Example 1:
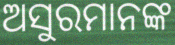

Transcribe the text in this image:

ଅସୁରମାନଙ୍କ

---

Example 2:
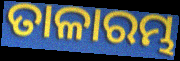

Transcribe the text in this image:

ତାଳାରମ୍ଭ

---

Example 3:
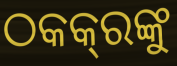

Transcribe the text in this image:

ଠକକ୍‌ରଙ୍କୁ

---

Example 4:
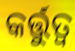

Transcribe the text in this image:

କର୍ତ୍ତୁତ୍ୱ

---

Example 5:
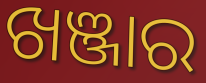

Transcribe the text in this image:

ଖଞ୍ଜାର